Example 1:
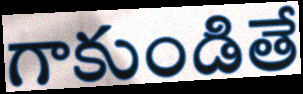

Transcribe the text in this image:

గాకుండితే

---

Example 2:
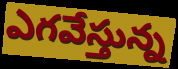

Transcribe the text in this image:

ఎగవేస్తున్న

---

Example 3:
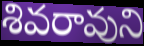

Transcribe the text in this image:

శివరావుని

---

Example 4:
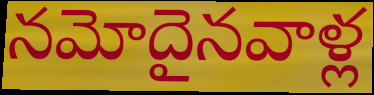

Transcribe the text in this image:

నమోదైనవాళ్ల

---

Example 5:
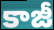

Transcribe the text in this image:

కాజీ